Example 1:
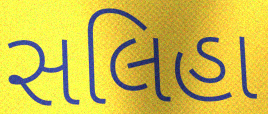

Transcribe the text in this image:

સલિહા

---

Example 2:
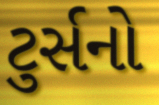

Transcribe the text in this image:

ટુર્સનો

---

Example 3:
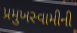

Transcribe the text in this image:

પ્રમુખસ્વામીની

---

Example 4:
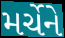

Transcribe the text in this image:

મર્ચેને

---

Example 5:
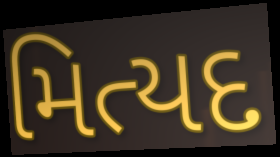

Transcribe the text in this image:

મિત્યદ